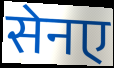
सेनए